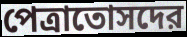
পেত্রাতোসদের